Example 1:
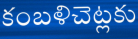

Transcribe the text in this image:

కంబళిచెట్లకు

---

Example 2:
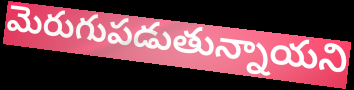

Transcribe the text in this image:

మెరుగుపడుతున్నాయని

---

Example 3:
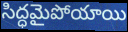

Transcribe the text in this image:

సిద్ధమైపోయాయి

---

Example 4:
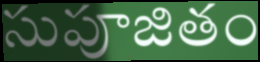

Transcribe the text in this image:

సుపూజితం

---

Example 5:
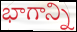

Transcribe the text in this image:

భాగాన్ని